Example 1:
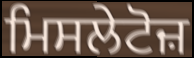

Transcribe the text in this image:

ਮਿਸਲੇਟੋਜ਼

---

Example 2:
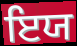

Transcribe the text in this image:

ਇਯ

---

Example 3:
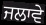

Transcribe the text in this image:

ਜਲਾਵੇ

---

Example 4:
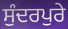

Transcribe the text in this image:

ਸੁੰਦਰਪੁਰੇ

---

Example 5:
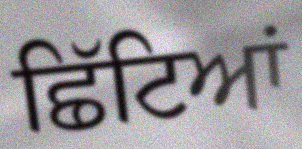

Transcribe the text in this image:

ਛਿੱਟਿਆਂ